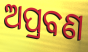
ଅପ୍ରବଣ